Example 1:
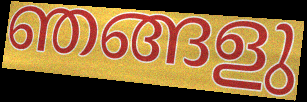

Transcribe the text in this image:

ഞങ്ങളു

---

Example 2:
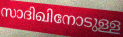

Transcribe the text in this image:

സാദിഖിനോടുള്ള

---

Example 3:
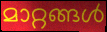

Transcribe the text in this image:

മാറ്റങ്ങൾ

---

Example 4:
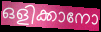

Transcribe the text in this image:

ഒളിക്കാനോ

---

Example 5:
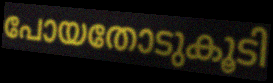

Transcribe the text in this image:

പോയതോടുകൂടി